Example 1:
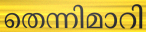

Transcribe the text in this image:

തെന്നിമാറി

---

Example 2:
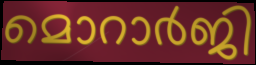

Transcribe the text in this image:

മൊറാർജി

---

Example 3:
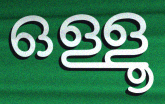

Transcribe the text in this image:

ഒള്ളൂ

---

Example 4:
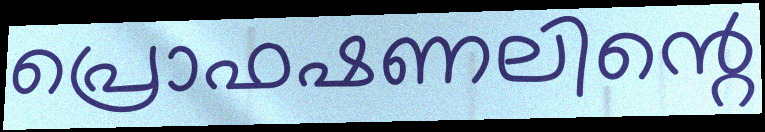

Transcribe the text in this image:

പ്രൊഫഷണലിന്റെ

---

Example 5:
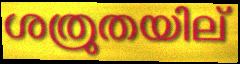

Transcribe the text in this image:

ശത്രുതയില്